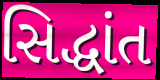
સિદ્ધાંત